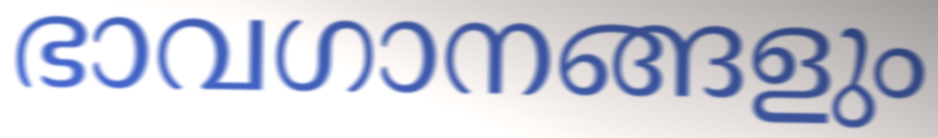
ഭാവഗാനങ്ങളും